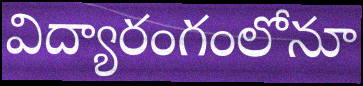
విద్యారంగంలోనూ